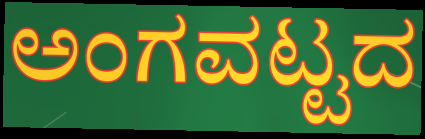
ಅಂಗವಟ್ಟದ